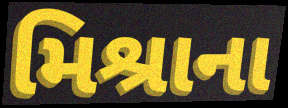
મિશ્રાના